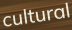
cultural